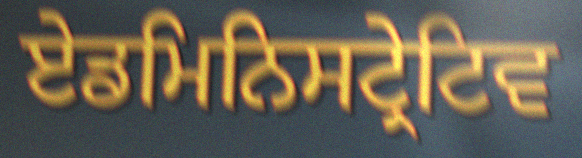
ਏਡਮਿਨਿਸਟ੍ਰੇਟਿਵ